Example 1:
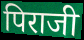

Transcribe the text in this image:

पिराजी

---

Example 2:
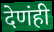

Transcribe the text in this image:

देणंही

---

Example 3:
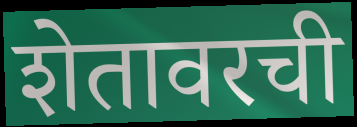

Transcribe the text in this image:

शेतावरची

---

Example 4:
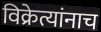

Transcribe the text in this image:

विक्रेत्यांनाच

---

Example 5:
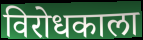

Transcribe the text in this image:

विरोधकाला